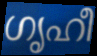
ഗൃഹീ